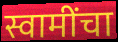
स्वामींचा